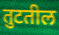
तुटतील